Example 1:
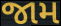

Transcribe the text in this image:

જામ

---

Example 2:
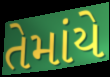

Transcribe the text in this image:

તેમાંયે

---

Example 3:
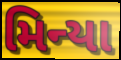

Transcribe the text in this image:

મિન્યા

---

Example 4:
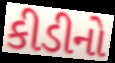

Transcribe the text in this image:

કીડીનો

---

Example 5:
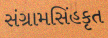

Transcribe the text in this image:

સંગ્રામસિંહકૃત